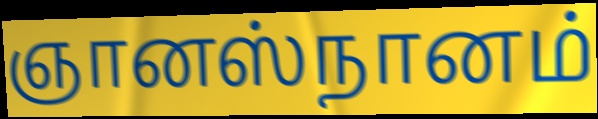
ஞானஸ்நானம்